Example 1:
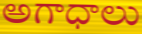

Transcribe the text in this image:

అగాధాలు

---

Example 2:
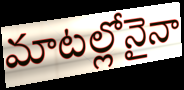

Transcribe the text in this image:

మాటల్లోనైనా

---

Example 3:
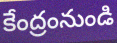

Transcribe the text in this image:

కేంద్రంనుండి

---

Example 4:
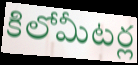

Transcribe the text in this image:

కిలోమీటర్ల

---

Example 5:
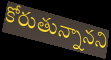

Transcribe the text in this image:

కోరుతున్నానని